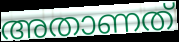
അതാണത്